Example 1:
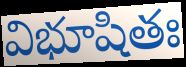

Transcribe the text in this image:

విభూషితః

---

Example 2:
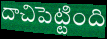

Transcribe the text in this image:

దాచిపెట్టింది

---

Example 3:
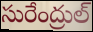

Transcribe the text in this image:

సురేంద్రుల్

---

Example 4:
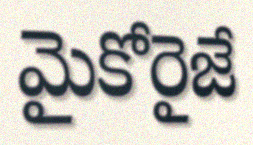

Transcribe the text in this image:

మైకోరైజే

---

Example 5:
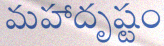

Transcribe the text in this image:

మహాదృష్టం